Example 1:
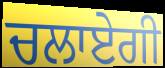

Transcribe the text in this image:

ਚਲਾਏਗੀ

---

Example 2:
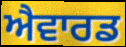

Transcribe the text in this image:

ਐਵਾਰਡ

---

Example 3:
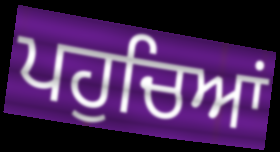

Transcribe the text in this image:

ਪਹੁਚਿਆਂ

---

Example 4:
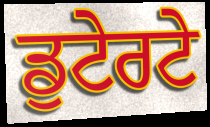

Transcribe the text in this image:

ਡੁਟੇਰਟੇ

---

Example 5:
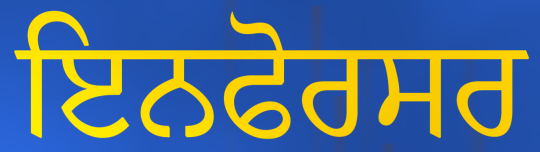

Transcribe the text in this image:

ਇਨਫੋਰਸਰ